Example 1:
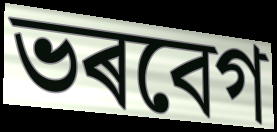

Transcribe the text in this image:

ভৰবেগ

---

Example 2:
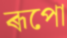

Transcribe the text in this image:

ৰূপো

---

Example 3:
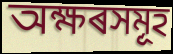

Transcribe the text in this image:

অক্ষৰসমূহ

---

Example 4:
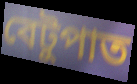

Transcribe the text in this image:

বেটুপাত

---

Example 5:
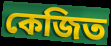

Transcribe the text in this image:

কেজিত